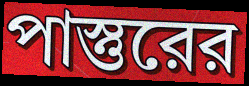
পাস্তুরের